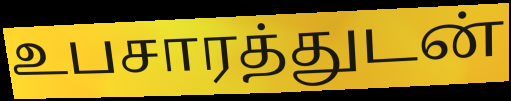
உபசாரத்துடன்